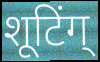
शूटिंग्